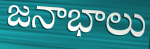
జనాభాలు